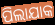
ପିଲାଯାକ